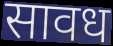
सावध